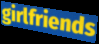
girlfriends